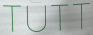
TUTT